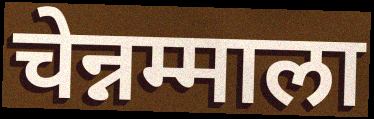
चेन्नम्माला